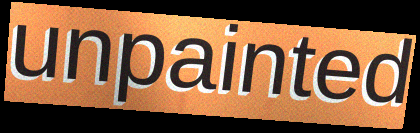
unpainted